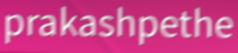
prakashpethe